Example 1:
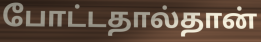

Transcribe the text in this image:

போட்டதால்தான்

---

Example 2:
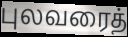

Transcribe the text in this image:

புலவரைத்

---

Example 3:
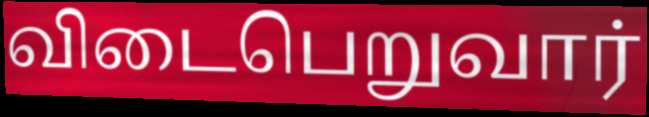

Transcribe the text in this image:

விடைபெறுவார்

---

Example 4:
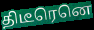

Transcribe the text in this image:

திடீரெனெ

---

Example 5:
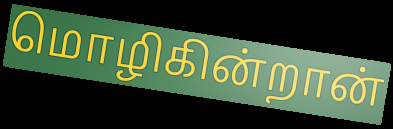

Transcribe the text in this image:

மொழிகின்றான்